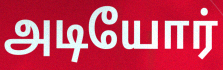
அடியோர்